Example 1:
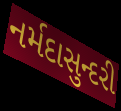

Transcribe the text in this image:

નર્મદાસુન્દરી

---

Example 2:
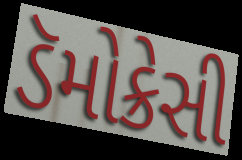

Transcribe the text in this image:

ડૅમોક્રેસી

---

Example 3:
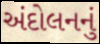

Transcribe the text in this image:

અંદોલનનું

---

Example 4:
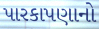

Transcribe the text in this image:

પારકાપણાનો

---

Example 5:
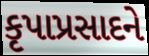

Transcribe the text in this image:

કૃપાપ્રસાદને